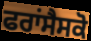
ਫਰਾਂਸੈਸਕੋ